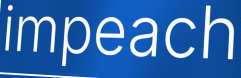
impeach